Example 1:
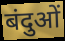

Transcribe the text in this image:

बंदुओं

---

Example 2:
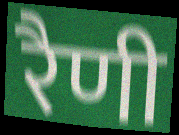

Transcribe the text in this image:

रैणी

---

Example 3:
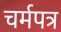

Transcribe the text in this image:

चर्मपत्र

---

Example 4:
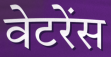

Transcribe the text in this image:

वेटरेंस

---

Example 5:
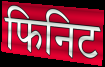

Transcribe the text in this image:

फिनिट